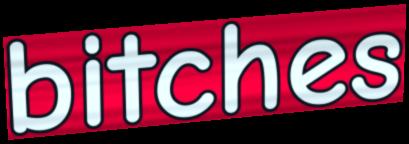
bitches